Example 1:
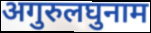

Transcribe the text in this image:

अगुरुलघुनाम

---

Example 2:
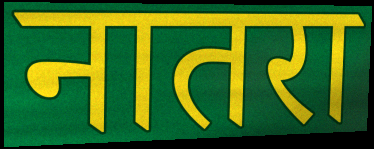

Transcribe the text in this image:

नातरा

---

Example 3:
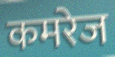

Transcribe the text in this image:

कमरेज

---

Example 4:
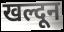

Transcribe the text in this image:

खल्दून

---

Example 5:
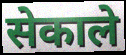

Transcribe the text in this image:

सेकाले